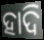
ହାଦି